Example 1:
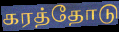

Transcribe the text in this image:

கரத்தோடு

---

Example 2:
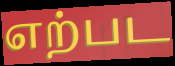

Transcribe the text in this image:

எற்பட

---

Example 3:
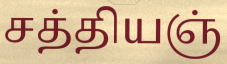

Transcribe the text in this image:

சத்தியஞ்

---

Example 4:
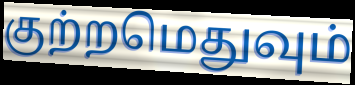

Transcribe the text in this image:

குற்றமெதுவும்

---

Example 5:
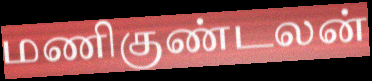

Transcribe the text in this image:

மணிகுண்டலன்